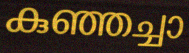
കുഞ്ഞച്ചാ